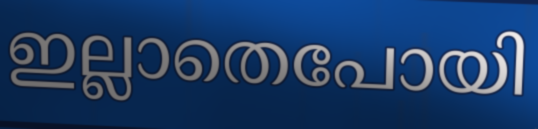
ഇല്ലാതെപോയി